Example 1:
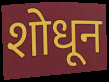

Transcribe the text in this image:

शोधून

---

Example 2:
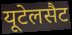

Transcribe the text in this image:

यूटेलसैट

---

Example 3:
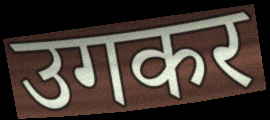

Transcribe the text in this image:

उगकर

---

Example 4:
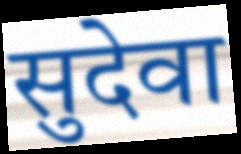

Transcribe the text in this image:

सुदेवा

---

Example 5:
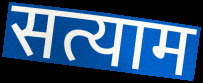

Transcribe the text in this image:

सत्याम